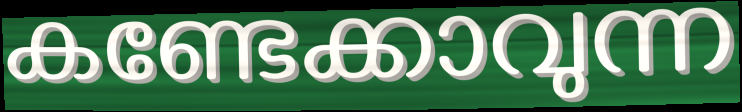
കണ്ടേക്കാവുന്ന